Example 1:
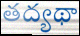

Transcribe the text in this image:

తద్యథా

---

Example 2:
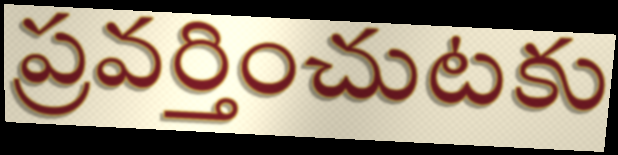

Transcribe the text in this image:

ప్రవర్తించుటకు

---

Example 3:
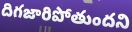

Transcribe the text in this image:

దిగజారిపోతుందని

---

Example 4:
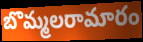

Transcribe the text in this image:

బొమ్మలరామారం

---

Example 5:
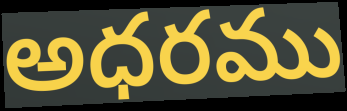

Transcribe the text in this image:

అధరము